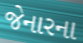
જેનારના